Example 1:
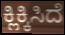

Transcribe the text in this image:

ಕ್ಲಿಕ್ಕಿಸಿದೆ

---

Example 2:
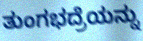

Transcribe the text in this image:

ತುಂಗಭದ್ರೆಯನ್ನು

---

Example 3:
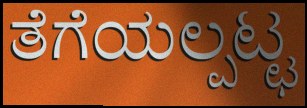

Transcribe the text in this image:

ತೆಗೆಯಲ್ಪಟ್ಟ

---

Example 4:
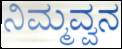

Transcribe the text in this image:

ನಿಮ್ಮವ್ವನ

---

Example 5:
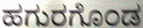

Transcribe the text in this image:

ಹಗುರಗೊಂಡ